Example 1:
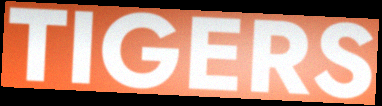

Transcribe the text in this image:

TIGERS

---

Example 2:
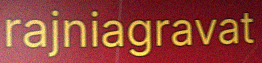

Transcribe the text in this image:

rajniagravat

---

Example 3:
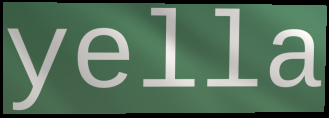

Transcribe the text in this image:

yella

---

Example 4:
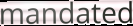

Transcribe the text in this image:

mandated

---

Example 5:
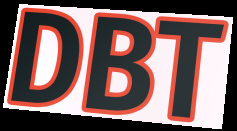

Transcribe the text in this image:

DBT